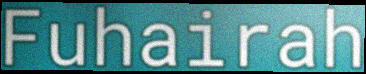
Fuhairah